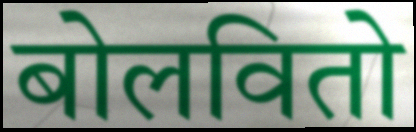
बोलवितो